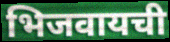
भिजवायची